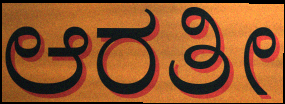
ಆರತೀ